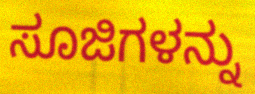
ಸೂಜಿಗಳನ್ನು